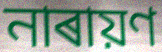
নাৰায়ণ